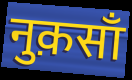
नुक़साँ